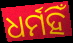
ଧର୍ମହିଁ